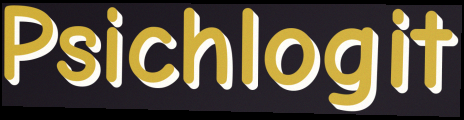
Psichlogit